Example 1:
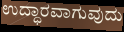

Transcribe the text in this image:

ಉದ್ಧಾರವಾಗುವುದು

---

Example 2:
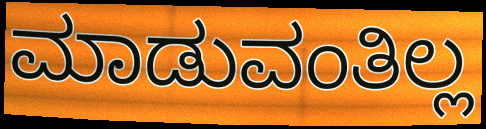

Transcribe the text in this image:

ಮಾಡುವಂತಿಲ್ಲ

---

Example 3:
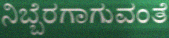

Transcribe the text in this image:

ನಿಬ್ಬೆರಗಾಗುವಂತೆ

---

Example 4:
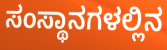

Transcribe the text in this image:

ಸಂಸ್ಥಾನಗಳಲ್ಲಿನ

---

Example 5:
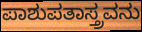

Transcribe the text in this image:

ಪಾಶುಪತಾಸ್ತ್ರವನು